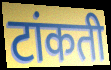
टांकती